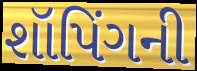
શૉપિંગની